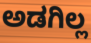
ಅಡಗಿಲ್ಲ